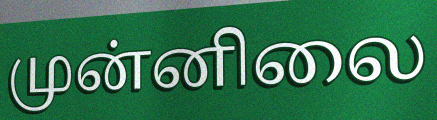
முன்னிலை